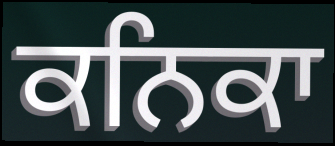
ਕਨਿਕਾ